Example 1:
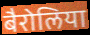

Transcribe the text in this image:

बैरोलिया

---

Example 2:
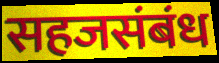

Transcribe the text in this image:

सहजसंबंध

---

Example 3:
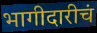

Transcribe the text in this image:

भागीदारीचं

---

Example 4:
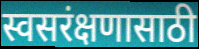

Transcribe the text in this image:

स्वसरंक्षणासाठी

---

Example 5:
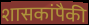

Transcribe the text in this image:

शासकांपैकी